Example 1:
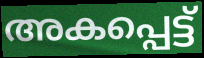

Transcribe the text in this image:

അകപ്പെട്ട്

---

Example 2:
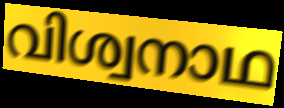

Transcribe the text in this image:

വിശ്വനാഥ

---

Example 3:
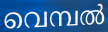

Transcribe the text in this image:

വെമ്പൽ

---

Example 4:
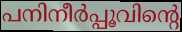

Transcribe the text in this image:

പനിനീർപ്പൂവിന്റെ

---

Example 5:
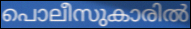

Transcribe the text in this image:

പൊലീസുകാരിൽ